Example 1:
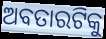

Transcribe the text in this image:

ଅବତାରଟିକୁ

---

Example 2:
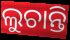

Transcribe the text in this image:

ଲୁଚାନ୍ତି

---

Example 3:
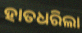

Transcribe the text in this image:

ହାତଧରିଲା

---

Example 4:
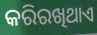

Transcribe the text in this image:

କରିରଖିଥାଏ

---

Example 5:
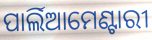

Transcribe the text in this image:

ପାର୍ଲିଆମେଣ୍ଟାରୀ